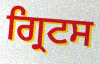
ਗ੍ਰਿਟਸ